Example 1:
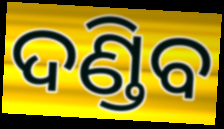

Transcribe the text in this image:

ଦଣ୍ଡିବ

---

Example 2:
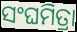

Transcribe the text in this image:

ସଂଘମିତ୍ରା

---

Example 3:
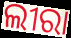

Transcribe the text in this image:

ଲୀରା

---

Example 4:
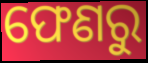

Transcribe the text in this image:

ଫେଣରୁ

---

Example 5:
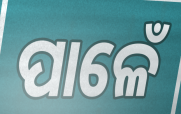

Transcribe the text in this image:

ପାଳେଁ